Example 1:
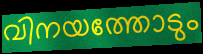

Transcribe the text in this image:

വിനയത്തോടും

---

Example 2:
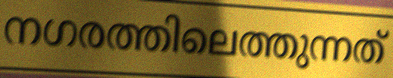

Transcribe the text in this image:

നഗരത്തിലെത്തുന്നത്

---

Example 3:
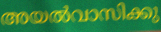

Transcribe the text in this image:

അയൽവാസിക്കു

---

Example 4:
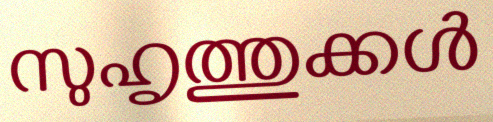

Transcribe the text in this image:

സുഹൃത്തുക്കൾ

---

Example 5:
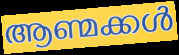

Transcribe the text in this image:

ആണ്മക്കൾ